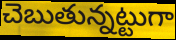
చెబుతున్నట్టుగా